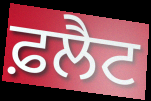
ਫ਼ਲੈਟ